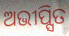
ଅଭୀପ୍ସିତ